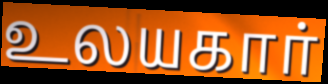
உலயகார்